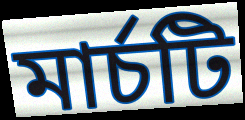
মার্চটি